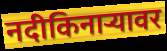
नदीकिनाऱ्यावर